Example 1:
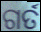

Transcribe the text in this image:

ଗର୍ତ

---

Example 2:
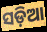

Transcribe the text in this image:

ସଡ଼ିଆ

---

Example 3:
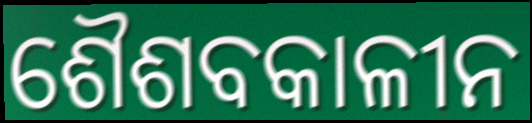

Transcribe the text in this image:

ଶୈଶବକାଳୀନ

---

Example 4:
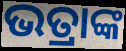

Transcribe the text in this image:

ଭତ୍ରାଙ୍କ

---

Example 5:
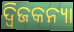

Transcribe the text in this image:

ଦ୍ୱିଜକନ୍ୟା